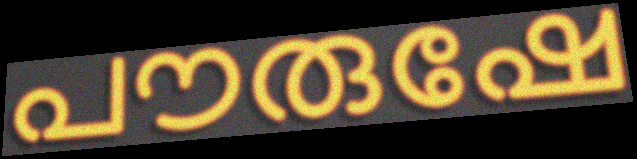
പൗരുഷേ